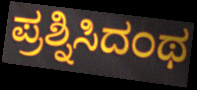
ಪ್ರಶ್ನಿಸಿದಂಥ